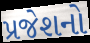
પ્રજેશનો